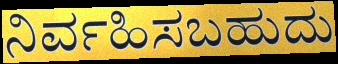
ನಿರ್ವಹಿಸಬಹುದು